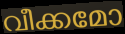
വീക്കമോ